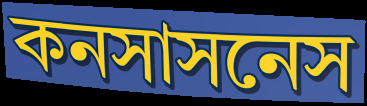
কনসাসনেস